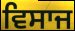
ਵਿਸਾਜ